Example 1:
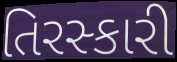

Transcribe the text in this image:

તિરસ્કારી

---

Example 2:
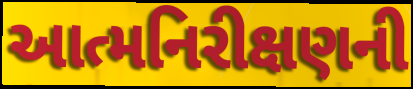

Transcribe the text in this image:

આત્મનિરીક્ષણની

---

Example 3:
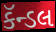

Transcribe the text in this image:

કૅન્ડલ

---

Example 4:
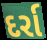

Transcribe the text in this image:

દર્રા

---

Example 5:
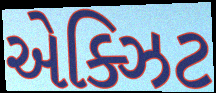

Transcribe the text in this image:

એક્ઝિટ